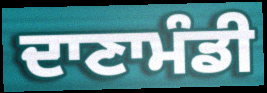
ਦਾਣਾਮੰਡੀ